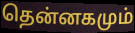
தென்னகமும்